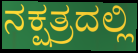
ನಕ್ಷತ್ರದಲ್ಲಿ